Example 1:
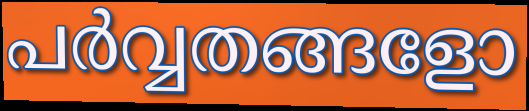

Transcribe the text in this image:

പർവ്വതങ്ങളോ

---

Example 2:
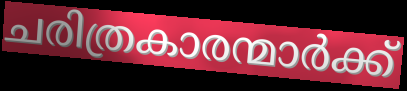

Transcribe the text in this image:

ചരിത്രകാരന്മാർക്ക്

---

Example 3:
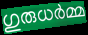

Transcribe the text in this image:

ഗുരുധർമ്മ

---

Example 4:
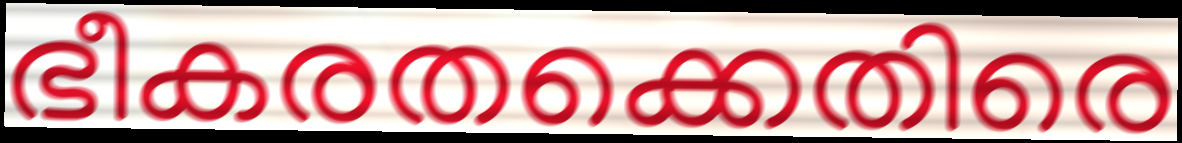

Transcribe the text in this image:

ഭീകരതക്കെതിരെ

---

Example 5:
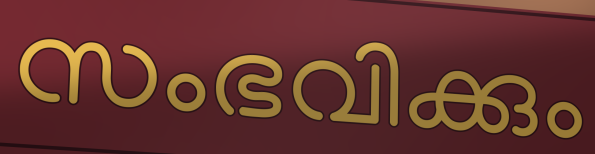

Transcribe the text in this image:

സംഭവിക്കും